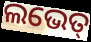
ଲଭେତ୍